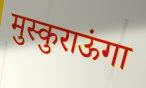
मुस्कुराऊंगा